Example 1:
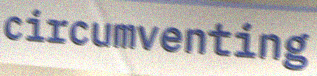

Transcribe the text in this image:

circumventing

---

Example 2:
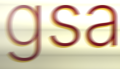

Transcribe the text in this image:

gsa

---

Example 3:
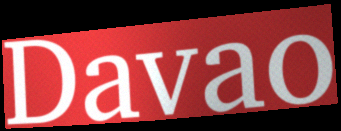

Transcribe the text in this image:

Davao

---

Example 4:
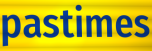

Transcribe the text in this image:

pastimes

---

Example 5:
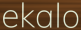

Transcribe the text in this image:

ekalo